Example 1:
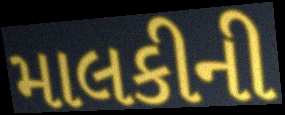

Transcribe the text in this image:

માલકીની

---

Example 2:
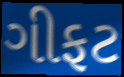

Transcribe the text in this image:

ગીફટ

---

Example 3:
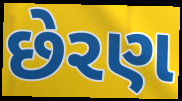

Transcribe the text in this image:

છેરણ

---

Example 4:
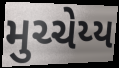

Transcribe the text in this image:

મુચ્ચેય્ય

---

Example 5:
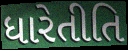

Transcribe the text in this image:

ધારેતીતિ